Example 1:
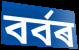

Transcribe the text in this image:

বৰ্বৰ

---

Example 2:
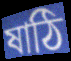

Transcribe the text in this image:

ষাঠি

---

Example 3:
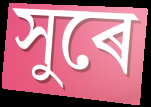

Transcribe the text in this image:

সুৰে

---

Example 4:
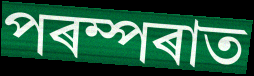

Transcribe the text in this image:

পৰম্পৰাত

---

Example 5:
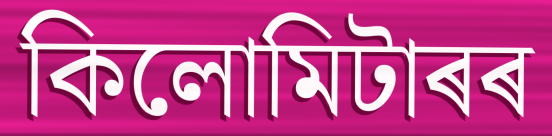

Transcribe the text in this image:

কিলোমিটাৰৰ